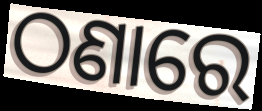
ଠଣାରେ